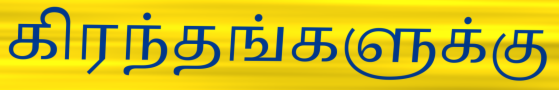
கிரந்தங்களுக்கு